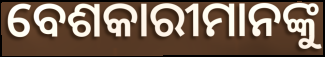
ବେଶକାରୀମାନଙ୍କୁ